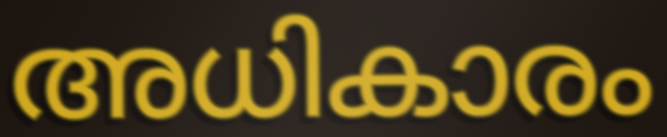
അധികാരം